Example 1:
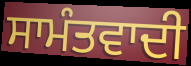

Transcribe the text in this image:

ਸਾਮੰਤਵਾਦੀ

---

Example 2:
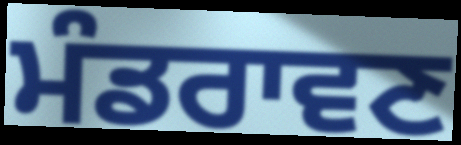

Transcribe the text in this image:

ਮੰਡਰਾਵਣ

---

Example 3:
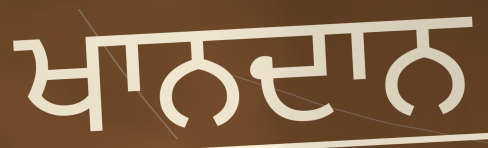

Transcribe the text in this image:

ਖਾਨਦਾਨ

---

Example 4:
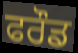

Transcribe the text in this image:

ਫਰੌਡ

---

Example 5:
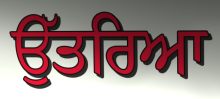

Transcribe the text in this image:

ਉੱਤਰਿਆ